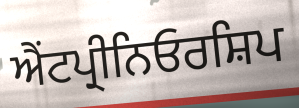
ਐਂਟਪ੍ਰੀਨਿਓਰਸ਼ਿਪ